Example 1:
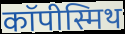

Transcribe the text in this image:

कॉपीस्मिथ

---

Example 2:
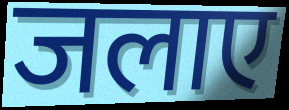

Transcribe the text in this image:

जलाए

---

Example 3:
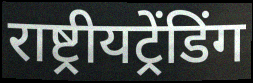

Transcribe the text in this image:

राष्ट्रीयट्रेंडिंग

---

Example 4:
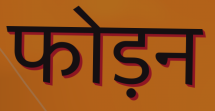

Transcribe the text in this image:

फोड़न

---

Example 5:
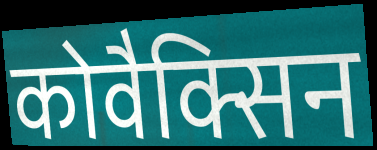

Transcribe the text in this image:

कोवैक्सिन